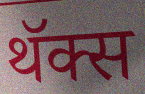
थॅक्स